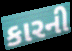
કારની